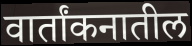
वार्तांकनातील